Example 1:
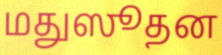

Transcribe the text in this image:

மதுஸூதன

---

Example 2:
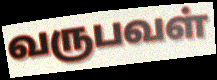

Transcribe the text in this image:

வருபவள்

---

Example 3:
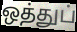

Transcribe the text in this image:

ஒத்துப்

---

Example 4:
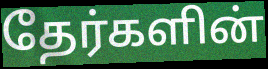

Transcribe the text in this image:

தேர்களின்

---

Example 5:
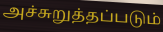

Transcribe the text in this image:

அச்சுறுத்தப்படும்